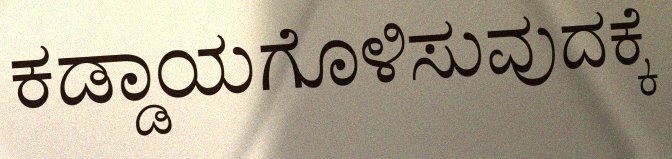
ಕಡ್ಡಾಯಗೊಳಿಸುವುದಕ್ಕೆ